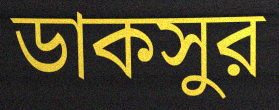
ডাকসুর